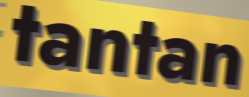
tantan